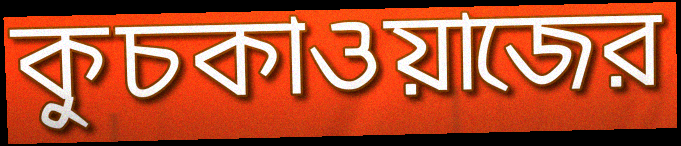
কুচকাওয়াজের